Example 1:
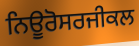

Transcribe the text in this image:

ਨਿਊਰੋਸਰਜੀਕਲ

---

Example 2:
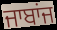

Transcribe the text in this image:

ਜਾਬਾਂਜ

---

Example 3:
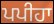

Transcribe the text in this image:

ਪਪੀਹਾ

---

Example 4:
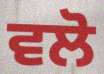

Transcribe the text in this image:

ਵਲੋ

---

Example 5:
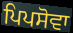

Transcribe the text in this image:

ਪਿਪਸੋਵਾ